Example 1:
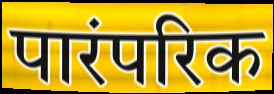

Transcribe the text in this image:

पारंपरिक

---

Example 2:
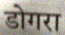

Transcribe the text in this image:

डोगरा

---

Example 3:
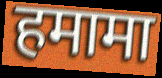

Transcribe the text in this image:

हमामा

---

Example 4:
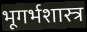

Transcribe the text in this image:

भूगर्भशास्त्र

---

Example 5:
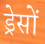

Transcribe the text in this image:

ड्रेसों